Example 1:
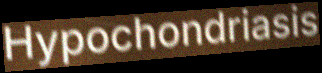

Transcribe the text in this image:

Hypochondriasis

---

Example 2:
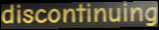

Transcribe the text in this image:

discontinuing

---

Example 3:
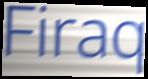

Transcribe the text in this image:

Firaq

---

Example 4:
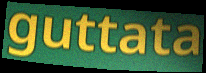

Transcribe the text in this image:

guttata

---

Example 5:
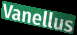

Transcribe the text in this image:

Vanellus